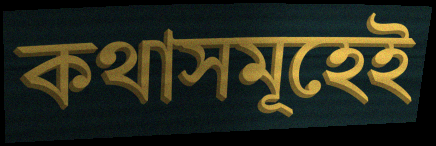
কথাসমূহেই